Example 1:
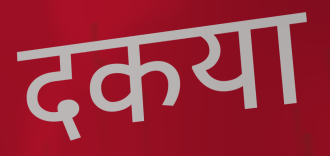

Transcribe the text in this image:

दकया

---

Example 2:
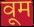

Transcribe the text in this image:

वूम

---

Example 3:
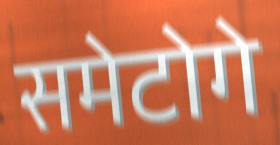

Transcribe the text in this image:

समेटोगे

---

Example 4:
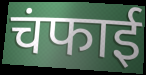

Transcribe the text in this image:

चंफाई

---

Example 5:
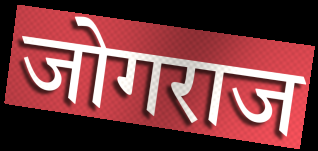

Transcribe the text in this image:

जोगराज